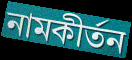
নামকীর্তন